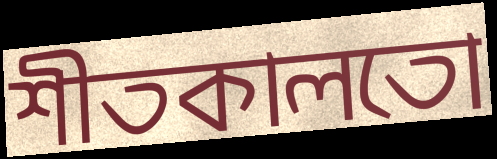
শীতকালতো